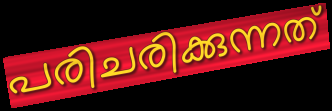
പരിചരിക്കുന്നത്